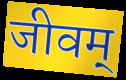
जीवम्